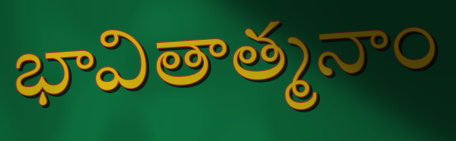
భావితాత్మనాం